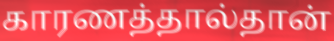
காரணத்தால்தான்